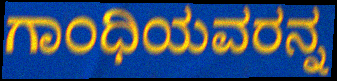
ಗಾಂಧಿಯವರನ್ನ